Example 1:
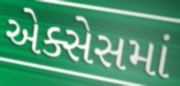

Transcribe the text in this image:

એક્સેસમાં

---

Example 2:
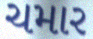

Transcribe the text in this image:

ચમાર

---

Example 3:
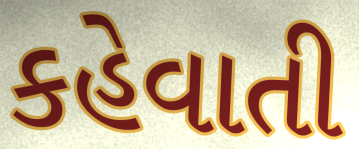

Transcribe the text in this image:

કહેવાતી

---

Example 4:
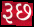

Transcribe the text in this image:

રૂછ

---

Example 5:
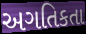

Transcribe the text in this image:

અગતિકતા